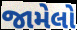
જામેલો